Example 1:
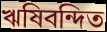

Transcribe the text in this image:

ঋষিবন্দিত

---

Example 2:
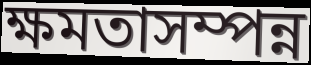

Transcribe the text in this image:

ক্ষমতাসম্পন্ন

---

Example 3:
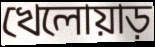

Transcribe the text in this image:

খেলোয়াড়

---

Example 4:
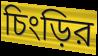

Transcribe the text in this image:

চিংড়ির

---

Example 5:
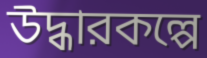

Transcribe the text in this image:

উদ্ধারকল্পে